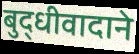
बुद्धीवादाने